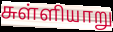
சுள்ளியாறு